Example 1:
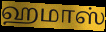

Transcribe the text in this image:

ஹமாஸ்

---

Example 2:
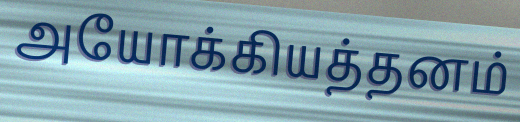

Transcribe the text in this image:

அயோக்கியத்தனம்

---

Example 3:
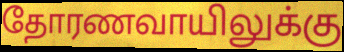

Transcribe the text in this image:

தோரணவாயிலுக்கு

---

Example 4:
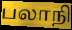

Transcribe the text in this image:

பலாநி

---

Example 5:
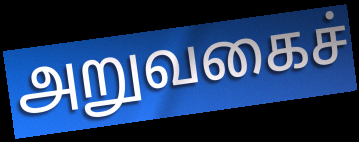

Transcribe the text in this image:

அறுவகைச்